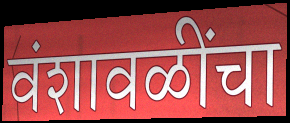
वंशावळींचा